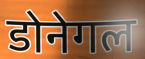
डोनेगल